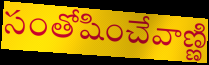
సంతోషించేవాణ్ణి